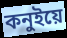
কনুইয়ে